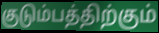
குடும்பத்திற்கும்